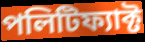
পলিটিফ্যাক্ট